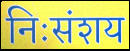
निःसंशय